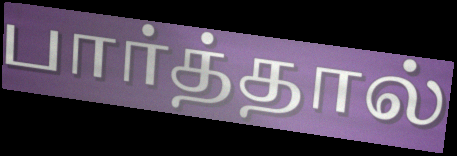
பார்த்தால்